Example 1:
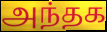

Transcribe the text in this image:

அந்தக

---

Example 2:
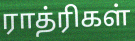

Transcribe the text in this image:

ராத்ரிகள்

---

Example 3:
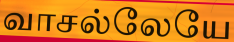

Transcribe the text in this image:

வாசல்லேயே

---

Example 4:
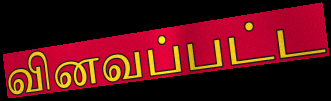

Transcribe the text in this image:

வினவப்பட்ட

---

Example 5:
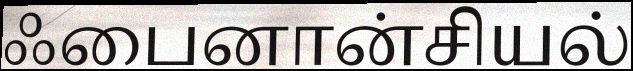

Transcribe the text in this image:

ஃபைனான்சியல்